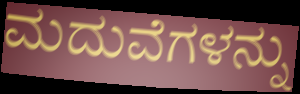
ಮದುವೆಗಳನ್ನು